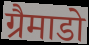
ग्रैमाडो